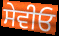
ਸੇਵੀਓ